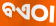
ବଏଠା